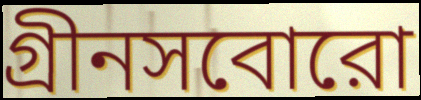
গ্রীনসবোরো